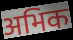
अभिक